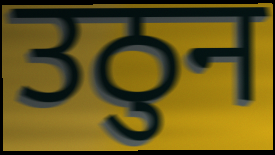
उठुन